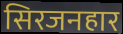
सिरजनहार